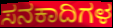
ಸನಕಾದಿಗಳ